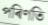
পৰিণতি